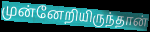
முன்னேறியிருந்தான்